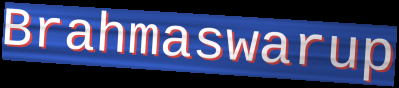
Brahmaswarup